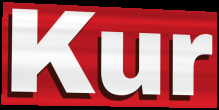
Kur